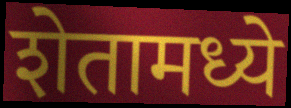
शेतामध्ये